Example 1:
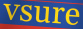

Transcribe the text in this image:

vsure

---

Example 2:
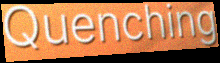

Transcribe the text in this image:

Quenching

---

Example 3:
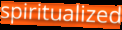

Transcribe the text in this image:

spiritualized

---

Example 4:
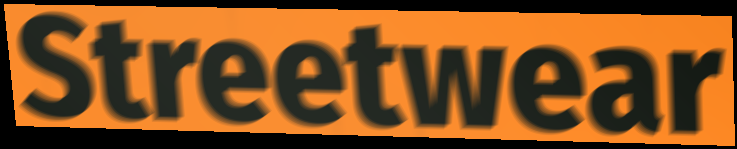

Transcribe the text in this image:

Streetwear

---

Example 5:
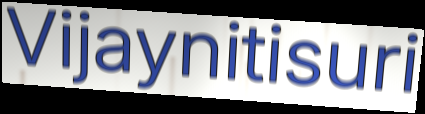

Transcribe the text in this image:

Vijaynitisuri